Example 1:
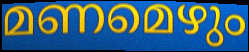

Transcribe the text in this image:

മണമെഴും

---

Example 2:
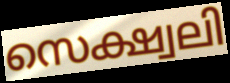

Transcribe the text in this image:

സെക്ഷ്വലി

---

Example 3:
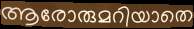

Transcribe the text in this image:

ആരോരുമറിയാതെ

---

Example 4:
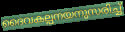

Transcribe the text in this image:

ദൈവകല്പനയനുസരിച്ച്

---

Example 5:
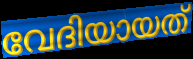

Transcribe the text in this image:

വേദിയായത്